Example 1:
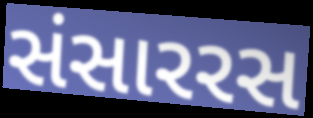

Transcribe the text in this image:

સંસારરસ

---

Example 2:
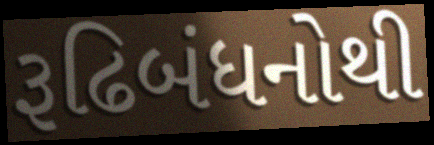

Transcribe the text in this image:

રૂઢિબંધનોથી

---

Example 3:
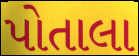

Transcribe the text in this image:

પોતાલા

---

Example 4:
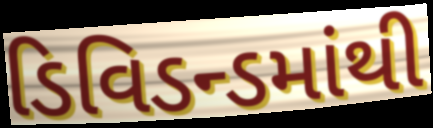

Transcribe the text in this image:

ડિવિડન્ડમાંથી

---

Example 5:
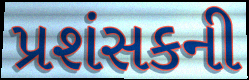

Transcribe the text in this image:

પ્રશંસકની